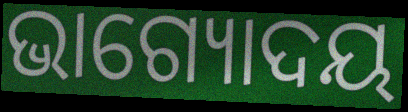
ଭାଗ୍ୟୋଦୟ